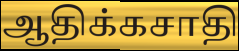
ஆதிக்கசாதி